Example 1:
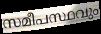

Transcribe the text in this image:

സമീപസ്ഥവും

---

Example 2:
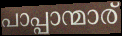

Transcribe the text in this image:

പാപ്പാന്മാര്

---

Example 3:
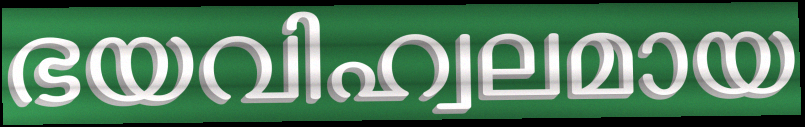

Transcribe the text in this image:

ഭയവിഹ്വലമായ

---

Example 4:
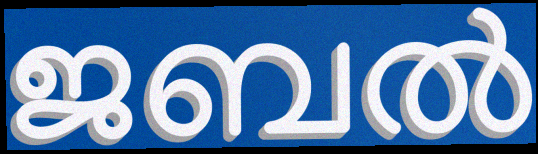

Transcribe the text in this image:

ജബൽ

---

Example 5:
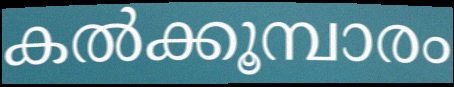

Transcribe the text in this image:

കൽക്കൂമ്പാരം